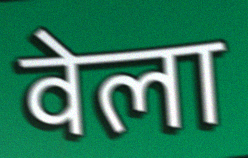
वेला